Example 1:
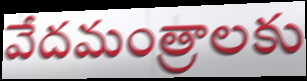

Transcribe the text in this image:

వేదమంత్రాలకు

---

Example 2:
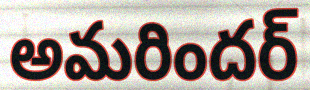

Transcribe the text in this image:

అమరిందర్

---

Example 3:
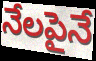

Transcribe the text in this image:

నేలపైనే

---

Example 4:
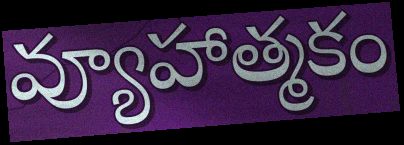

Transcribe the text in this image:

వ్యూహాత్మకం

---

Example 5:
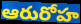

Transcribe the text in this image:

ఆరురోహ